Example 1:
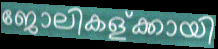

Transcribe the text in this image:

ജോലികള്ക്കായി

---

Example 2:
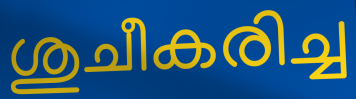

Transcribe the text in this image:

ശുചീകരിച്ച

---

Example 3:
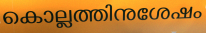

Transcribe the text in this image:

കൊല്ലത്തിനുശേഷം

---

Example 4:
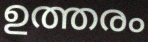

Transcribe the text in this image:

ഉത്തരം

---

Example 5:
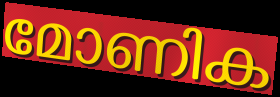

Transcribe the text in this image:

മോണിക